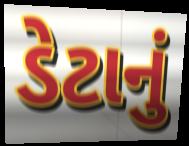
ડેટાનું